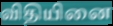
விதியினை